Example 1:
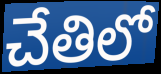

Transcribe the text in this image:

చేతిలో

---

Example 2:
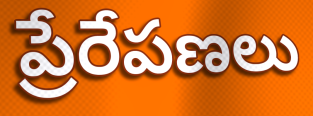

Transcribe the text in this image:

ప్రేరేపణలు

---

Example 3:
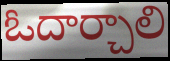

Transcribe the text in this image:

ఓదార్చాలి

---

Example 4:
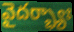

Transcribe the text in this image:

వైదర్భ్యాః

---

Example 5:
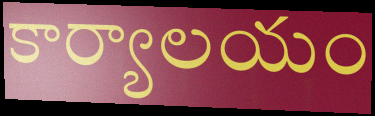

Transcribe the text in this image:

కార్యాలయం